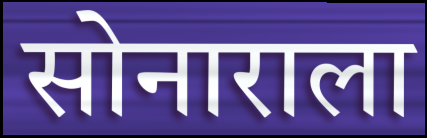
सोनाराला